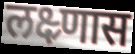
लक्ष्र्णास